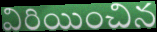
విరియించిన